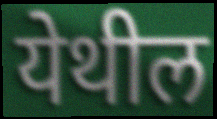
येथील